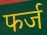
फर्ज